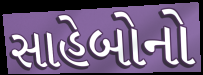
સાહેબોનો